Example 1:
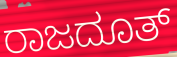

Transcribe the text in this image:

ರಾಜದೂತ್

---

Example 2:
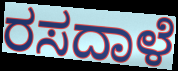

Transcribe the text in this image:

ರಸದಾಳೆ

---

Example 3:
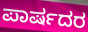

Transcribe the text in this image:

ಪಾರ್ಷದರ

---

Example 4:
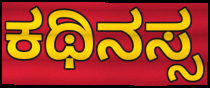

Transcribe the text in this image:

ಕಥಿನಸ್ಸ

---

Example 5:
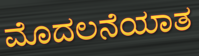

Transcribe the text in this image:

ಮೊದಲನೆಯಾತ